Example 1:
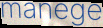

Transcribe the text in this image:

manege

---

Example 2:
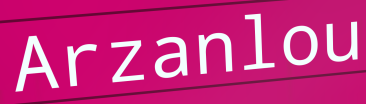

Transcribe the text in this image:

Arzanlou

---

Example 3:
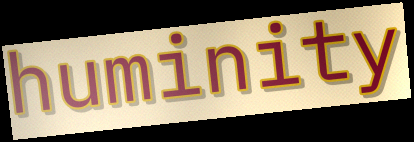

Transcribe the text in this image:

huminity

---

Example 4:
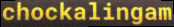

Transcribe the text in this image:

chockalingam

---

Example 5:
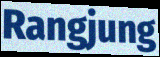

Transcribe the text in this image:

Rangjung